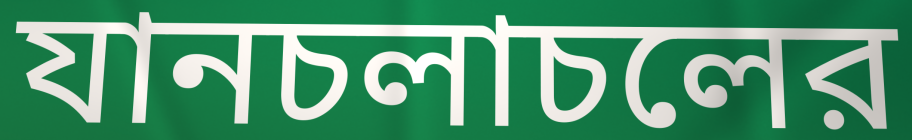
যানচলাচলের